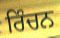
ਰਿੰਚਨ